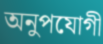
অনুপযোগী